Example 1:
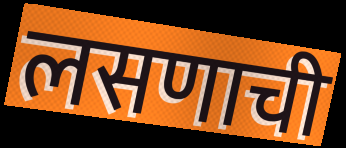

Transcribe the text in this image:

लसणाची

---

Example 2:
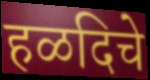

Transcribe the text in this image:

हळदिचे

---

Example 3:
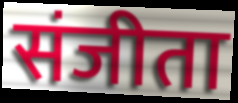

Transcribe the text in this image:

संजीता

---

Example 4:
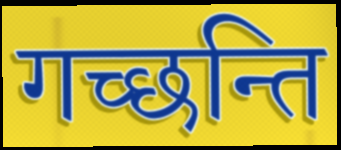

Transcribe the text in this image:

गच्छन्ति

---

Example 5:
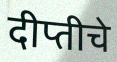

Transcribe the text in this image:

दीप्तीचे